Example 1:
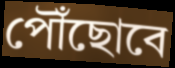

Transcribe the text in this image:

পৌঁছোবে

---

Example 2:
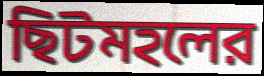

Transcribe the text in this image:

ছিটমহলের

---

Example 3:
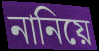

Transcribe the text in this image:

নানিয়ে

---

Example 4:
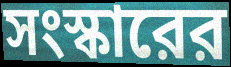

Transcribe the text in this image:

সংস্কারের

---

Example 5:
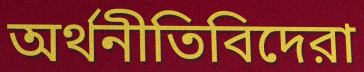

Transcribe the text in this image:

অর্থনীতিবিদেরা